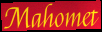
Mahomet